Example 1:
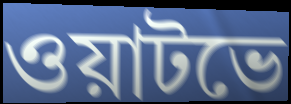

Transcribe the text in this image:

ওয়াটভে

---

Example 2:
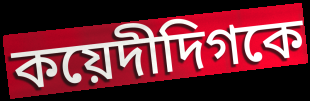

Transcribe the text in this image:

কয়েদীদিগকে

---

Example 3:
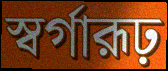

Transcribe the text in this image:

স্বর্গারূঢ়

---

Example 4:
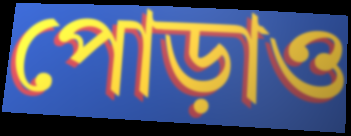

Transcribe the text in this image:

পোড়াও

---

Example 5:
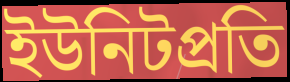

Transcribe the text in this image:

ইউনিটপ্রতি